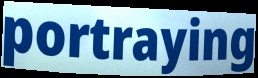
portraying